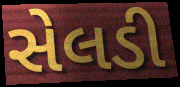
સેલડી